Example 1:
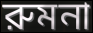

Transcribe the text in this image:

রুমনা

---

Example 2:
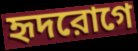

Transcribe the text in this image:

হৃদরোগে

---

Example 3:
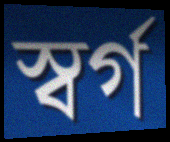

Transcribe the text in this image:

স্বর্গ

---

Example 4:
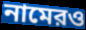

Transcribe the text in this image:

নামেরও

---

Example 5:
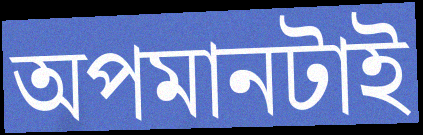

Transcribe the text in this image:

অপমানটাই